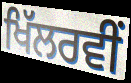
ਖਿੱਲਰਵੀਂ